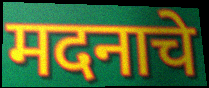
मदनाचे